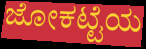
ಜೋಕಟ್ಟೆಯ